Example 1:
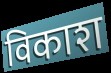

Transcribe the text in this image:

विकाश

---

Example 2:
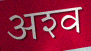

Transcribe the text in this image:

अश्व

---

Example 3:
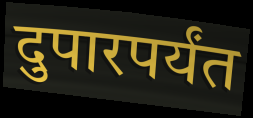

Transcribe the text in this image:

दुपारपर्यंत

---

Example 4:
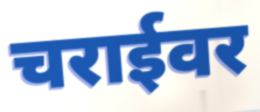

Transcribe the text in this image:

चराईवर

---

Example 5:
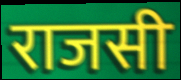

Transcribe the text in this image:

राजसी